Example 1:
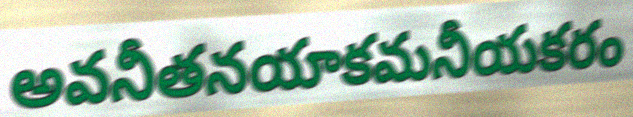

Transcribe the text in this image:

అవనీతనయాకమనీయకరం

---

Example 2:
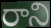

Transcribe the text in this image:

రాని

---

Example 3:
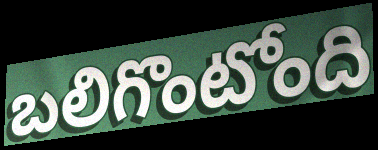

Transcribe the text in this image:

బలిగొంటోంది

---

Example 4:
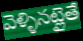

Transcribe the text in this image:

వెళ్ళినట్లైతే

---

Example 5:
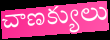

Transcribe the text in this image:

చాణక్యులు